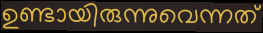
ഉണ്ടായിരുന്നുവെന്നത്